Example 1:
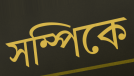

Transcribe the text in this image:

সম্পিকে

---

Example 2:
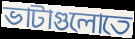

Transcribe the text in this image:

ভাটাগুলোতে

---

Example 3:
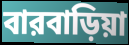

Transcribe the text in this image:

বারবাড়িয়া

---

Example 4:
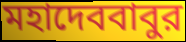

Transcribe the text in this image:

মহাদেববাবুর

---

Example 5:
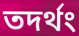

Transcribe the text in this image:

তদর্থং